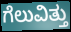
ಗೆಲುವಿತ್ತು